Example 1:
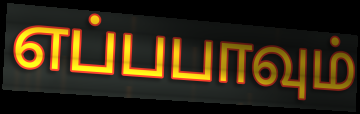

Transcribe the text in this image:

எப்பபாவும்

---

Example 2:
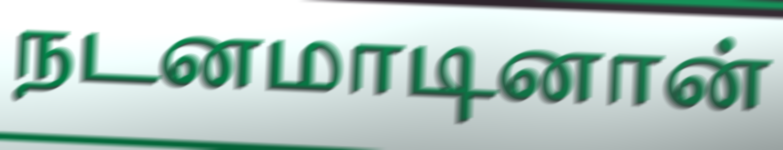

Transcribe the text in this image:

நடனமாடினான்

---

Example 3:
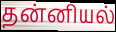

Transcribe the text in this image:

தன்னியல்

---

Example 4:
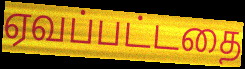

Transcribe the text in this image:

ஏவப்பட்டதை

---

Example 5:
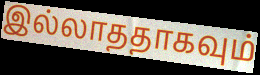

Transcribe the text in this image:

இல்லாததாகவும்